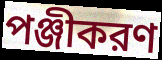
পঞ্জীকরণ